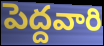
పెద్దవారి